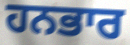
ਹਨਭਾਰ